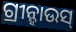
ଗ୍ରୀନ୍ହାଉସ୍